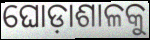
ଘୋଡ଼ାଶାଳକୁ